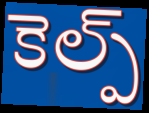
కెల్ప్